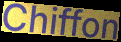
Chiffon